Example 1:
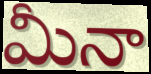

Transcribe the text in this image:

మీనా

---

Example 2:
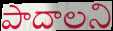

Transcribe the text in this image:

పాదాలని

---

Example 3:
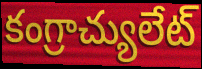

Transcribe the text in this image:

కంగ్రాచ్యులేట్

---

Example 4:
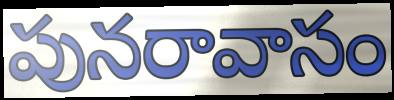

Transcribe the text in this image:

పునరావాసం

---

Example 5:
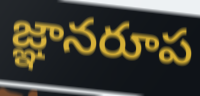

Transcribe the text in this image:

జ్ఞానరూప